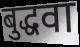
बुद्धवा